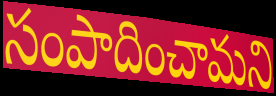
సంపాదించామని